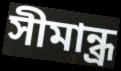
সীমান্ধ্র